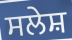
ਸਲੇਸ਼